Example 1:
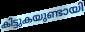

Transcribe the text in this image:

കിട്ടുകയുണ്ടായി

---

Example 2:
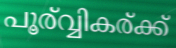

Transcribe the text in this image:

പൂര്വ്വികര്ക്ക്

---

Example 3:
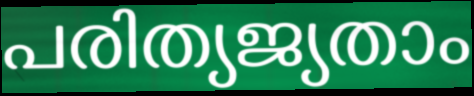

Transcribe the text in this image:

പരിത്യജ്യതാം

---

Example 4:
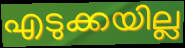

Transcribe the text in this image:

എടുക്കയില്ല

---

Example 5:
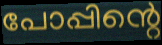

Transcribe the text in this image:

പോപ്പിന്റെ